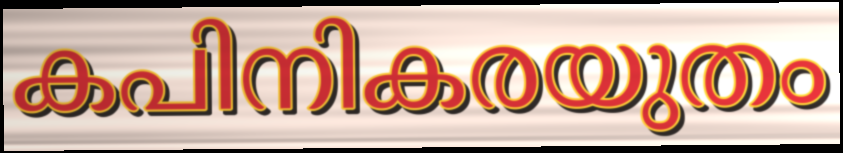
കപിനികരയുതം